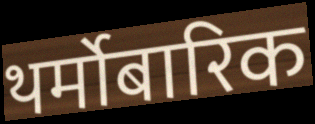
थर्मोबारिक